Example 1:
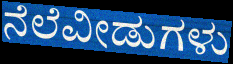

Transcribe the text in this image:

ನೆಲೆವೀಡುಗಳು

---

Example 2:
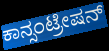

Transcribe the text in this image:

ಕಾನ್ಸಂಟ್ರೇಷನ್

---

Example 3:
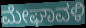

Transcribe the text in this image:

ಮೇಘಾವಳಿ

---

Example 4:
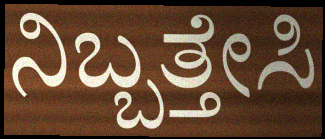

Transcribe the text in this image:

ನಿಬ್ಬತ್ತೇಸಿ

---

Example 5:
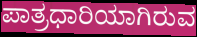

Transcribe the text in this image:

ಪಾತ್ರಧಾರಿಯಾಗಿರುವ